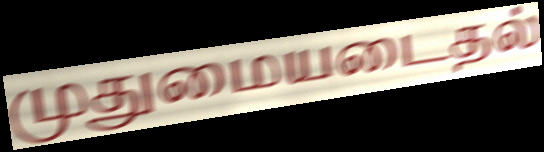
முதுமையடைதல்